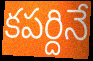
కపర్దినే